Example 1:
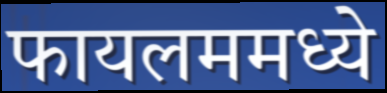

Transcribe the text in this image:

फायलममध्ये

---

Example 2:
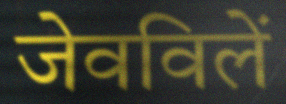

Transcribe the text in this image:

जेवविलें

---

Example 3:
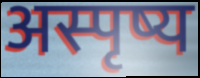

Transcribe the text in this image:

अस्पृष्य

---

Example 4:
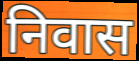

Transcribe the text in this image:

निवास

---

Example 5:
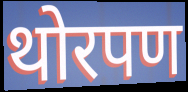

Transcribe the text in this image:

थोरपण